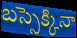
బస్సెక్కినా